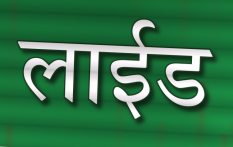
लाईड